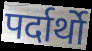
पर्दार्थो